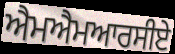
ਐਮਐਮਆਰਸੀਏ